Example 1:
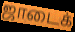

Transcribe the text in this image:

ஜாடைக்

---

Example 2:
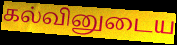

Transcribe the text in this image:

கல்வினுடைய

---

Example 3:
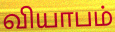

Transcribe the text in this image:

வியாபம்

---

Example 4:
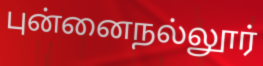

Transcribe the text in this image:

புன்னைநல்லூர்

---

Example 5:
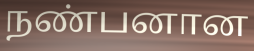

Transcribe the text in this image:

நண்பனான